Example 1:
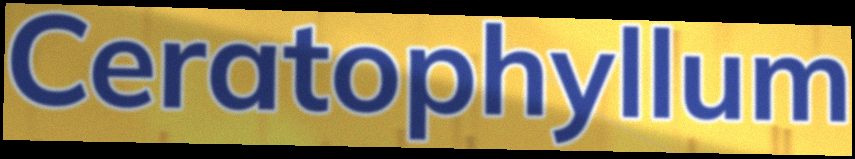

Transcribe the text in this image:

Ceratophyllum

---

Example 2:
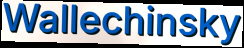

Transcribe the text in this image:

Wallechinsky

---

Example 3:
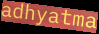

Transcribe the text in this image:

adhyatma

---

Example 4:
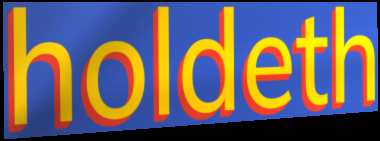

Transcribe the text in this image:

holdeth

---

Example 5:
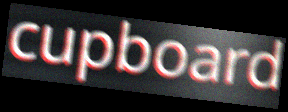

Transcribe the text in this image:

cupboard